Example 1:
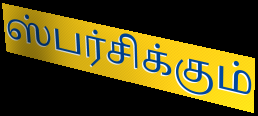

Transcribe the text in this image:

ஸ்பர்சிக்கும்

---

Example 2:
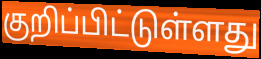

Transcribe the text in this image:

குறிப்பிட்டுள்ளது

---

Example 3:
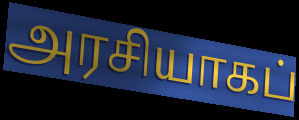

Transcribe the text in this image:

அரசியாகப்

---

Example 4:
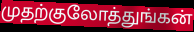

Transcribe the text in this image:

முதற்குலோத்துங்கன்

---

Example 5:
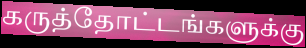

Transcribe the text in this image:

கருத்தோட்டங்களுக்கு